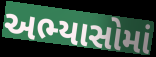
અભ્યાસોમાં